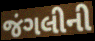
જંગલીની